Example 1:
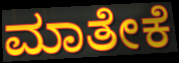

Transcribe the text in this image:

ಮಾತೇಕೆ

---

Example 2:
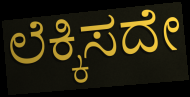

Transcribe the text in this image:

ಲೆಕ್ಕಿಸದೇ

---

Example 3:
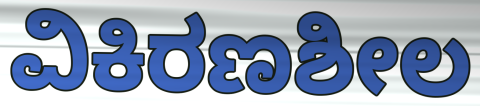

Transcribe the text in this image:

ವಿಕಿರಣಶೀಲ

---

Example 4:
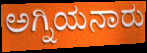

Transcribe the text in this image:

ಅಗ್ನಿಯನಾರು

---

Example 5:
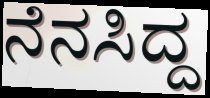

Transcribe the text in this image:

ನೆನಸಿದ್ದ